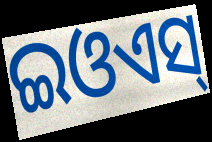
ଇଓଏସ୍